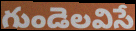
గుండెలవిసే